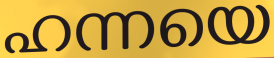
ഹന്നയെ